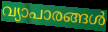
വ്യാപാരങ്ങൾ